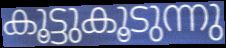
കൂട്ടുകൂടുന്നു